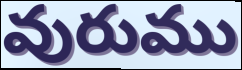
వురుము